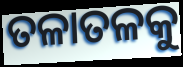
ତଳାତଳକୁ